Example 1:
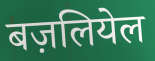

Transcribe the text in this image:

बज़लियेल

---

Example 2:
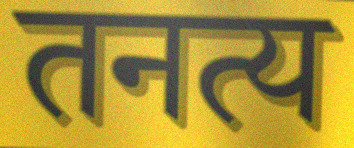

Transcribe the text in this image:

तनत्य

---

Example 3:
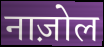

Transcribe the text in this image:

नाज़ोल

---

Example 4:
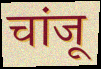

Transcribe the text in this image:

चांजू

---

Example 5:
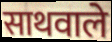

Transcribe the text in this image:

साथवाले